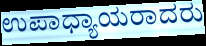
ಉಪಾಧ್ಯಾಯರಾದರು